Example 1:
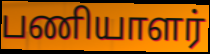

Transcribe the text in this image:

பணியாளர்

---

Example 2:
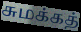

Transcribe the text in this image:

சுமக்கத்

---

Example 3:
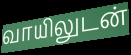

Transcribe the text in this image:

வாயிலுடன்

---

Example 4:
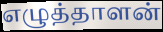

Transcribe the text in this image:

எழுத்தாளன்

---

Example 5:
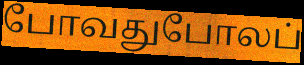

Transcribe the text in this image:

போவதுபோலப்